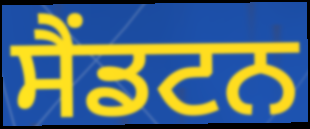
ਸੈਂਡਟਨ